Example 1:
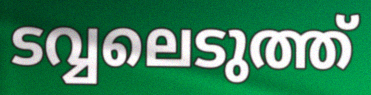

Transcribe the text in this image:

ടവ്വലെടുത്ത്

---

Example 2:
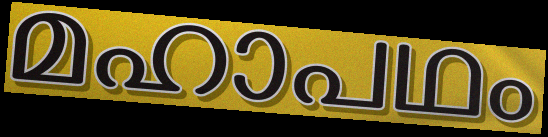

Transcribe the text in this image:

മഹാപഥം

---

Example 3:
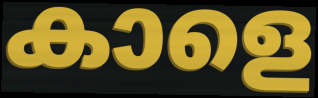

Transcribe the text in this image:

കാളെ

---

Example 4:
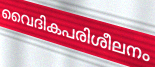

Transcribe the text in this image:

വൈദികപരിശീലനം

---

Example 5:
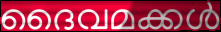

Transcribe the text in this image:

ദൈവമക്കൾ